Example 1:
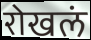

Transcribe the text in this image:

रोखलं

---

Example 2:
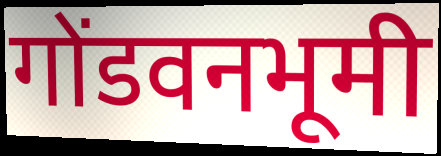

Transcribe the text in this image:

गोंडवनभूमी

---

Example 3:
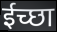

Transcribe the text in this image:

ईच्छा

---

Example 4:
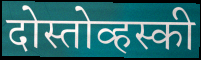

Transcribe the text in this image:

दोस्तोव्हस्की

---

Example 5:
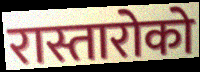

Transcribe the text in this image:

रास्तारोको